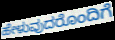
ಹೇಳುವುದರೊಂದಿಗೆ